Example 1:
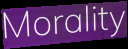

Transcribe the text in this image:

Morality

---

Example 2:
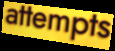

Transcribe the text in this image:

attempts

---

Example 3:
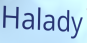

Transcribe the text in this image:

Halady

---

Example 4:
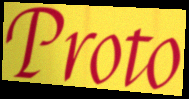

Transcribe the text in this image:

Proto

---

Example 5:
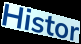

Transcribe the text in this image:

Histor